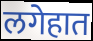
लगेहात